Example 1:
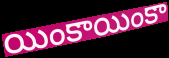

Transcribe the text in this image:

యింకాయింకా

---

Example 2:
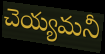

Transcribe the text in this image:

చెయ్యమనీ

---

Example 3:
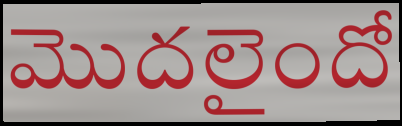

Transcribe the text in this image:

మొదలైందో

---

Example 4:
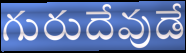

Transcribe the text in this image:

గురుదేవుడే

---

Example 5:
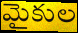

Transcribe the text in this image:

మైకుల